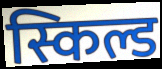
स्किल्ड